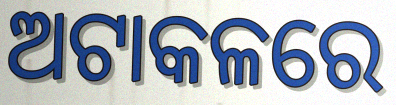
ଅଟାକଳରେ